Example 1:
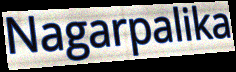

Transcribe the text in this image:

Nagarpalika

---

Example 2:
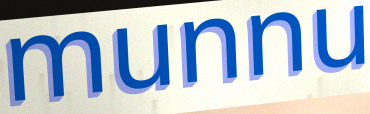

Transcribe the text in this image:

munnu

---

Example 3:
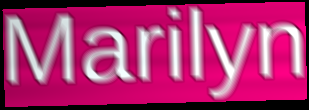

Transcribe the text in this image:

Marilyn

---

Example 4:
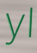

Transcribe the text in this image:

yl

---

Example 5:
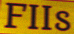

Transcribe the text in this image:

FIIs